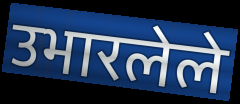
उभारलेले